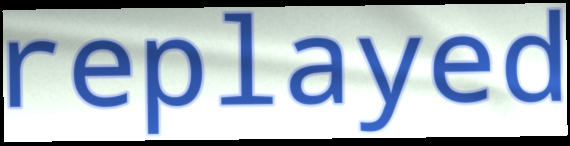
replayed